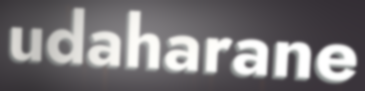
udaharane